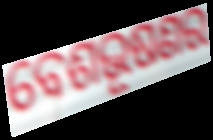
ବେଶଭୂଷଣର